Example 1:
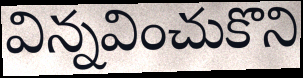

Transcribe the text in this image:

విన్నవించుకొని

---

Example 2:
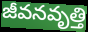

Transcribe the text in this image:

జీవనవృత్తి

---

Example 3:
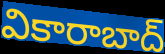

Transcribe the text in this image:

వికారాబాద్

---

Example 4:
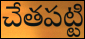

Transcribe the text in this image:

చేతపట్టి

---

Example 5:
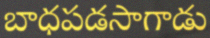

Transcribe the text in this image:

బాధపడసాగాడు